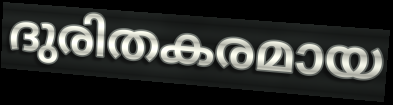
ദുരിതകരമായ